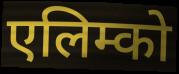
एलिम्को